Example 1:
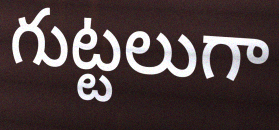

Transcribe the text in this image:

గుట్టలుగా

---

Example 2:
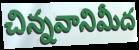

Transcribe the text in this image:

చిన్నవానిమీద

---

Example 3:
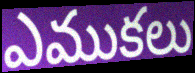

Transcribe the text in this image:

ఎముకలు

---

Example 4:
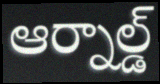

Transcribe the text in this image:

ఆర్నాల్డ్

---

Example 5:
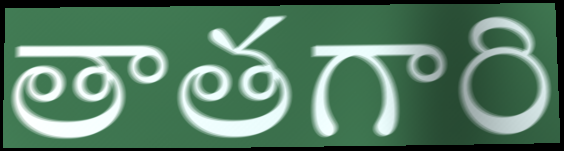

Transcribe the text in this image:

తాతగారి